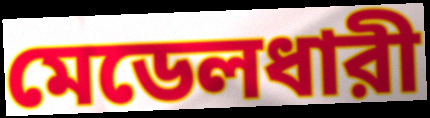
মেডেলধারী